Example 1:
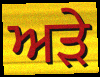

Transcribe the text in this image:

ਅੜੇ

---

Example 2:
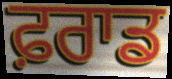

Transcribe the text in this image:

ਫ਼ਰਾਡ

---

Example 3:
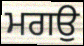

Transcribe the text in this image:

ਮਗਉ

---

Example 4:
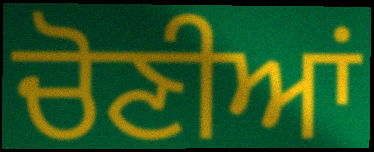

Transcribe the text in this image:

ਚੋਣੀਆਂ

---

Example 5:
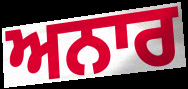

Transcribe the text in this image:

ਅਨਾਰ